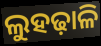
ଲୁହଢ଼ାଳି